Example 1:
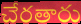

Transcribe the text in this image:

చేరతారు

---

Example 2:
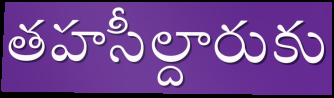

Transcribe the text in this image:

తహసీల్దారుకు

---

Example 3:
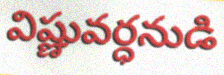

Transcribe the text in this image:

విష్ణువర్ధనుడి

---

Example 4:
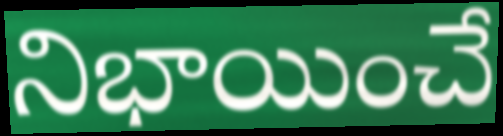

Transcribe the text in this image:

నిభాయించే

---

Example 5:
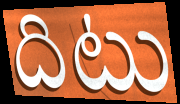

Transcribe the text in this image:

దిటు